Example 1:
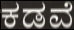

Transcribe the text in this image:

ಕಡವೆ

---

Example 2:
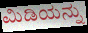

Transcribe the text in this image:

ಮಿಡಿಯನ್ನು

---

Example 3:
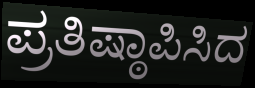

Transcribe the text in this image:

ಪ್ರತಿಷ್ಠಾಪಿಸಿದ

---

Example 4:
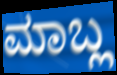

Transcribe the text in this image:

ಮಾಬ್ಲ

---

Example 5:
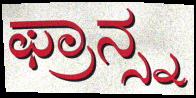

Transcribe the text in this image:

ಫ್ರಾನ್ಸ್ನ